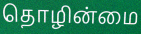
தொழின்மை